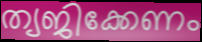
ത്യജിക്കേണം